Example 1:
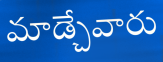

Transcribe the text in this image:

మాడ్చేవారు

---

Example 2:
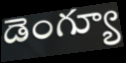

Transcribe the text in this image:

డెంగ్యూ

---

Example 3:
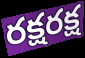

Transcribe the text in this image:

రక్షరక్ష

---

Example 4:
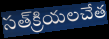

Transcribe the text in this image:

సత్‌క్రియలచేత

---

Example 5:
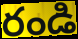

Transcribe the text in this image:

రండి